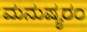
ಮನುಷ್ಯರಂ